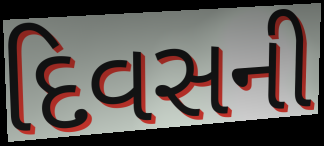
દિવસની